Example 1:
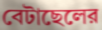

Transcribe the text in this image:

বেটাছেলের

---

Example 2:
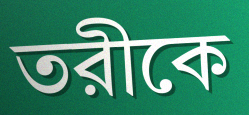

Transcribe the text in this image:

তরীকে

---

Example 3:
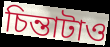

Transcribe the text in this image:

চিন্তাটাও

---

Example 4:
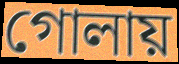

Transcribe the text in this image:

গোলায়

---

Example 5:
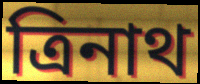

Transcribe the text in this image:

ত্রিনাথ